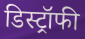
डिस्ट्रॉफी